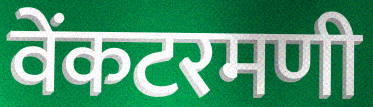
वेंकटरमणी